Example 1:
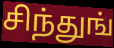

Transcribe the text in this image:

சிந்துங்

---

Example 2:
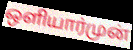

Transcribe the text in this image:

ஒளியார்முன்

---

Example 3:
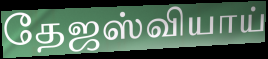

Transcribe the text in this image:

தேஜஸ்வியாய்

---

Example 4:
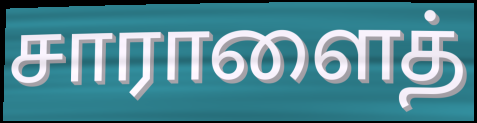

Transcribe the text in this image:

சாராளைத்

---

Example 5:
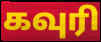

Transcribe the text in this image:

கவுரி